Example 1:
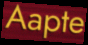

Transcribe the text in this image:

Aapte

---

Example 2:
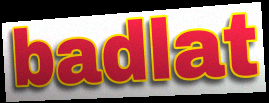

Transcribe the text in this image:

badlat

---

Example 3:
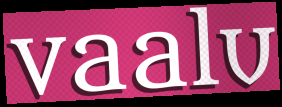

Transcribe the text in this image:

vaalu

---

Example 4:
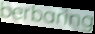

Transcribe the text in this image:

berbaring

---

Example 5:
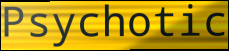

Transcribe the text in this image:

Psychotic